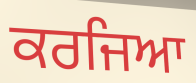
ਕਰਜਿਆ